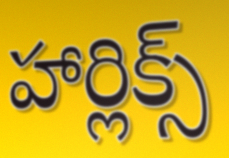
హార్లిక్స్